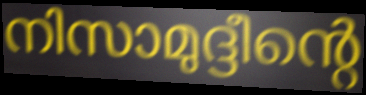
നിസാമുദ്ദീന്റെ